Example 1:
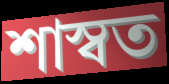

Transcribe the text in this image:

শাস্বত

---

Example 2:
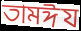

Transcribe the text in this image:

তামঈয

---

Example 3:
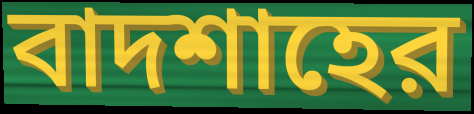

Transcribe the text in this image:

বাদশাহের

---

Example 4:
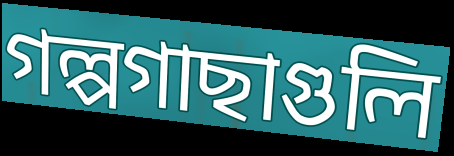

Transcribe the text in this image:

গল্পগাছাগুলি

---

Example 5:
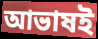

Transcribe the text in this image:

আভাষই